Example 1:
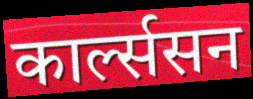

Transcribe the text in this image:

कार्ल्ससन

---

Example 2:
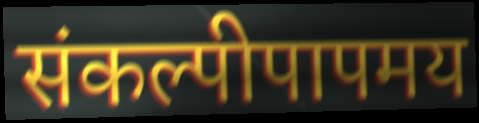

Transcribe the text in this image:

संकल्पीपापमय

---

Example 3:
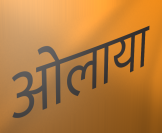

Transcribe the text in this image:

ओलाया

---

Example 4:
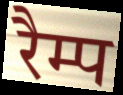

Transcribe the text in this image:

रैम्प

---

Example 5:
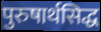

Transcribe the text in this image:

पुरुषार्थसिद्ध